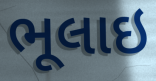
ભૂલાઇ